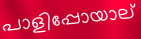
പാളിപ്പോയാല്